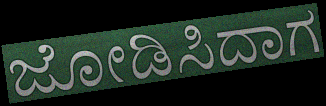
ಜೋಡಿಸಿದಾಗ